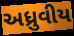
અધ્રુવીય